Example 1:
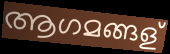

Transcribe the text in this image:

ആഗമങ്ങള്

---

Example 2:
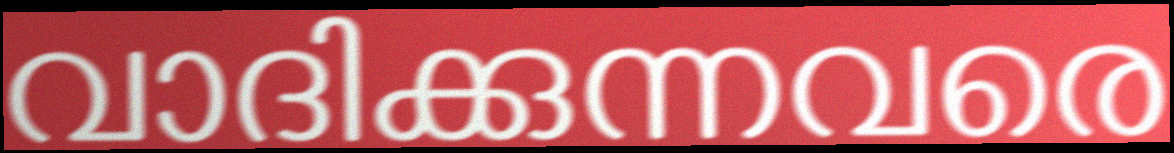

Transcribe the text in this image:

വാദിക്കുന്നവരെ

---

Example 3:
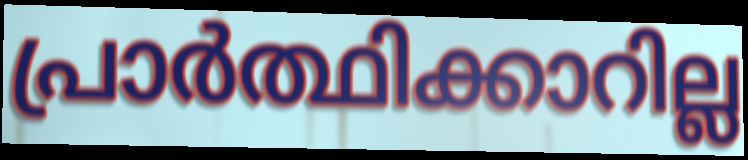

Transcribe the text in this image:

പ്രാർത്ഥിക്കാറില്ല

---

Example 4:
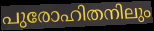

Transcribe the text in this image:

പുരോഹിതനിലും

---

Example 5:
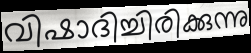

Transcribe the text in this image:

വിഷാദിച്ചിരിക്കുന്നു